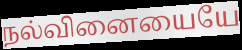
நல்வினையையே